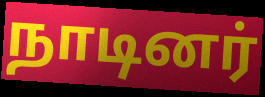
நாடினர்